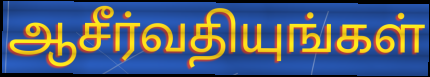
ஆசீர்வதியுங்கள்